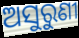
ଅସୁରୁଣୀ